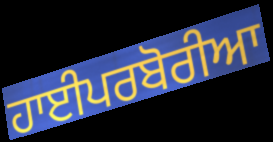
ਹਾਈਪਰਬੋਰੀਆ